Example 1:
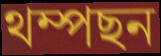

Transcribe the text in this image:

থম্পছন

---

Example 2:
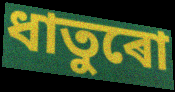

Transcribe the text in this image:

ধাতুৰো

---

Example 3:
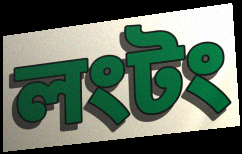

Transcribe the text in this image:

লংটং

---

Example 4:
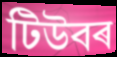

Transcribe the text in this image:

টিউবৰ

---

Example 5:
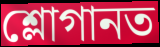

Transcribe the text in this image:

শ্লোগানত